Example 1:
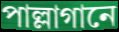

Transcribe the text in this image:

পাল্লাগানে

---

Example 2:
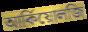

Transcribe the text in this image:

আর্কিয়োলজি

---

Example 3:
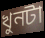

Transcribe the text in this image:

খুনটা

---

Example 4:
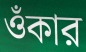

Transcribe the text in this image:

ওঁকার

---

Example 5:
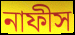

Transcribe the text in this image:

নাফীস